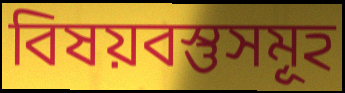
বিষয়বস্তুসমূহ